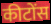
कीटोंस